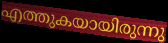
എത്തുകയായിരുന്നു